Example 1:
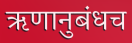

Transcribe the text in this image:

ऋणानुबंधच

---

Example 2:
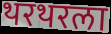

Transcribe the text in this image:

थरथरला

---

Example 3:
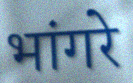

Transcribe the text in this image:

भांगरे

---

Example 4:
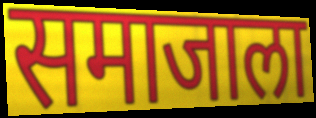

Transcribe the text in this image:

समाजाला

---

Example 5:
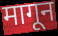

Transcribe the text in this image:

मागून